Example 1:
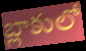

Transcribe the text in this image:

బ్లాకులో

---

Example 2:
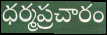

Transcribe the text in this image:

ధర్మప్రచారం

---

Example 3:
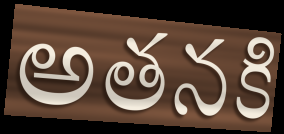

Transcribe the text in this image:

అతనకి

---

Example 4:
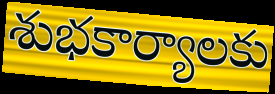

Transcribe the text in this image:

శుభకార్యాలకు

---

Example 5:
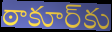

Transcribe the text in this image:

ఠాకూర్‌కు